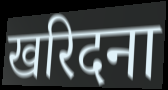
खरिदना